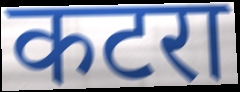
कटरा